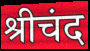
श्रीचंद